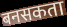
बनसकता